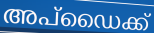
അപ്ഡൈക്ക്